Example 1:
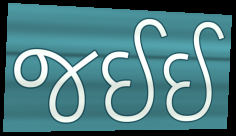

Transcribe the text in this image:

જઈઈ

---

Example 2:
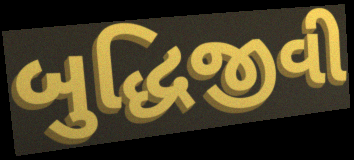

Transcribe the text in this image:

બુદ્ધિજીવી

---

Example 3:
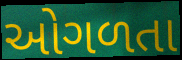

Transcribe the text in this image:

ઓગળતા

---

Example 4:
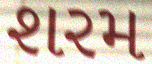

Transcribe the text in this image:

શરમ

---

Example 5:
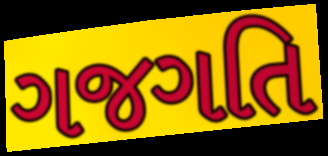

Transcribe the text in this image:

ગજગતિ